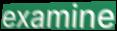
examine